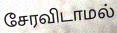
சேரவிடாமல்